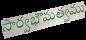
సార్వభౌమత్వము